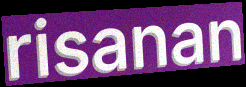
risanan